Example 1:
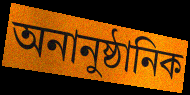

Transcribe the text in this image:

অনানুষ্ঠানিক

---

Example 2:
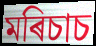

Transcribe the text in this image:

মৰিচাচ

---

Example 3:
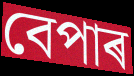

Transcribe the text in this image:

বেপাৰ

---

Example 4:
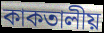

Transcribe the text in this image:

কাকতালীয়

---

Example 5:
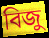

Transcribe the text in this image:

বিজু